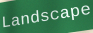
Landscape